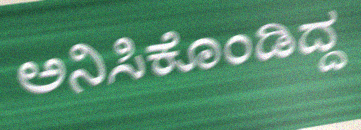
ಅನಿಸಿಕೊಂಡಿದ್ದ